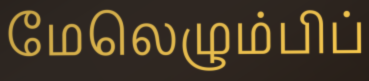
மேலெழும்பிப்